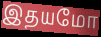
இதயமோ